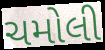
ચમોલી